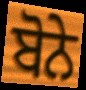
ਬੋਨੇ